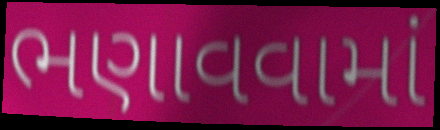
ભણાવવામાં